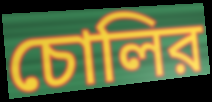
চোলির